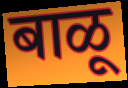
बाळू